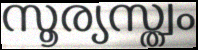
സൂര്യസ്ത്വം